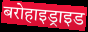
बरोहाइड्राइड